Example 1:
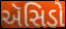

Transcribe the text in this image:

ઍસિડો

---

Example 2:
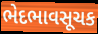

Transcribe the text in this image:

ભેદભાવસૂચક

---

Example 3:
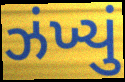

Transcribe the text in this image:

ઝંખ્યું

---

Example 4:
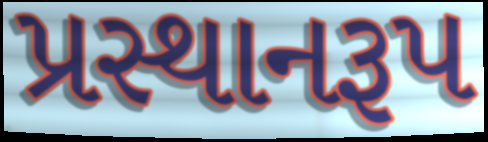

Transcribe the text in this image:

પ્રસ્થાનરૂપ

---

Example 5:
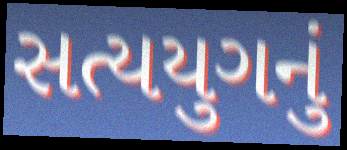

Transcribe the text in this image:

સત્યયુગનું